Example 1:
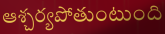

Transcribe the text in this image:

ఆశ్చర్యపోతుంటుంది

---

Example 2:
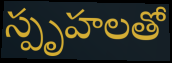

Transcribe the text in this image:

స్పృహలతో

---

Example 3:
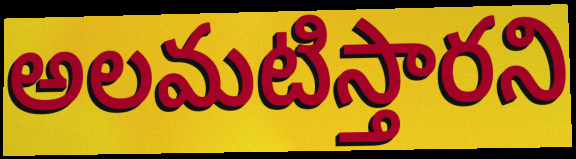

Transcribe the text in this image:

అలమటిస్తారని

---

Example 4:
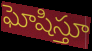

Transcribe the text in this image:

ఘోషిస్తూ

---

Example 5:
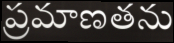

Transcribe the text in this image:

ప్రమాణతను